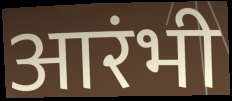
आरंभी